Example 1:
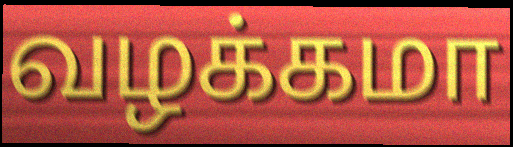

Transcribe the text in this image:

வழக்கமா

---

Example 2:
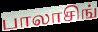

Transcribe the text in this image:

பாலாசிங்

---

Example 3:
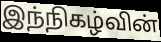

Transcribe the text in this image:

இந்நிகழ்வின்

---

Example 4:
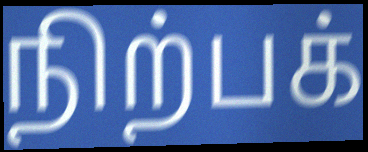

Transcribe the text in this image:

நிற்பக்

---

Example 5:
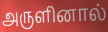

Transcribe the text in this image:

அருளினால்